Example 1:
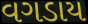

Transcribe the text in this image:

વગડાય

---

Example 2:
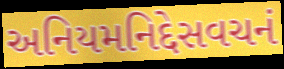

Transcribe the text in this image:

અનિયમનિદ્દેસવચનં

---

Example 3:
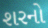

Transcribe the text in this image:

શરનો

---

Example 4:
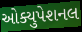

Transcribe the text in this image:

ઓક્યુપેશનલ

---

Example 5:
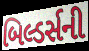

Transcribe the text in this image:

બિલ્ડર્સની